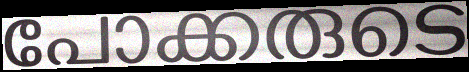
പോക്കരുടെ